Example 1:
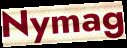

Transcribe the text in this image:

Nymag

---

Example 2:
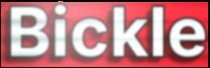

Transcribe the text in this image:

Bickle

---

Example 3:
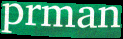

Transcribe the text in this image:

prman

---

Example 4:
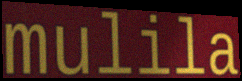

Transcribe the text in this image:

mulila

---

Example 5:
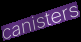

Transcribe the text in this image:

canisters